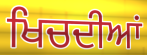
ਖਿਚਦੀਆਂ